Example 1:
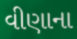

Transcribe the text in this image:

વીણાના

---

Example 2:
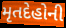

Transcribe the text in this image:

મૃતદેહોની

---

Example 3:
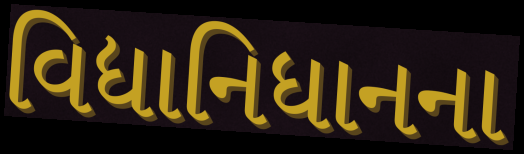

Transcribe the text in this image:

વિદ્યાનિધાનના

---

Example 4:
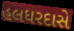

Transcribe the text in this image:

હલધરદાસે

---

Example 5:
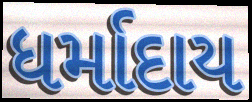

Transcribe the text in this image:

ધર્માદાય